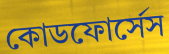
কোডফোর্সেস